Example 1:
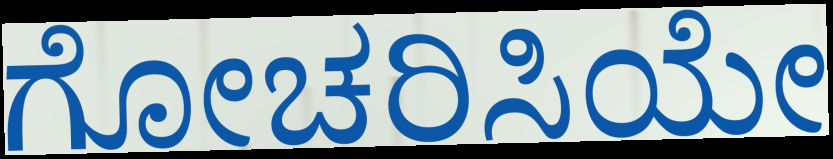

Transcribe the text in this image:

ಗೋಚರಿಸಿಯೇ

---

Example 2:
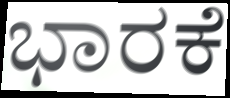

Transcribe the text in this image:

ಭಾರಕೆ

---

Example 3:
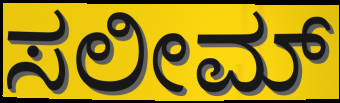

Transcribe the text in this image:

ಸಲೀಮ್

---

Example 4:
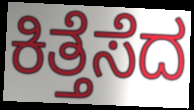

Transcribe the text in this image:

ಕಿತ್ತೆಸೆದ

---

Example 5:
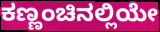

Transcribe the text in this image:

ಕಣ್ಣಂಚಿನಲ್ಲಿಯೇ